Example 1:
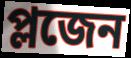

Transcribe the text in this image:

প্লজেন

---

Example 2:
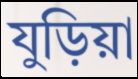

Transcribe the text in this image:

যুড়িয়া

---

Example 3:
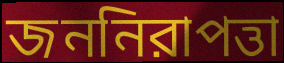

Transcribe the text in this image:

জননিরাপত্তা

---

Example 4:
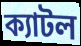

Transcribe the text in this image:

ক্যাটল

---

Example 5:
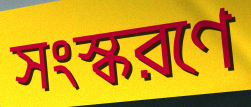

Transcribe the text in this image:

সংস্করণে